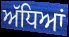
ਅੱਧਿਆਂ